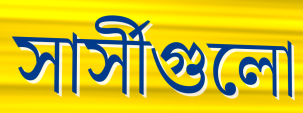
সার্সীগুলো